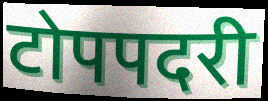
टोपपदरी